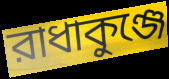
রাধাকুঞ্জে